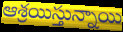
ఆశ్రయిస్తున్నాయి